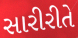
સારીરીતે